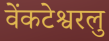
वेंकटेश्वरलु